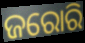
ଜରୋରି